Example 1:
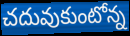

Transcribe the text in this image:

చదువుకుంటోన్న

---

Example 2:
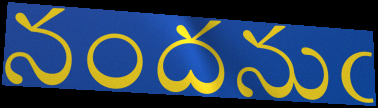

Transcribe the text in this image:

నందనుఁ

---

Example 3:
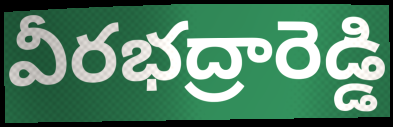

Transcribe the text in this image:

వీరభద్రారెడ్డి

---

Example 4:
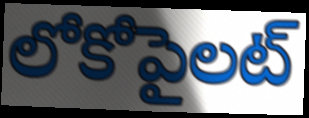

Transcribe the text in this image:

లోకోపైలట్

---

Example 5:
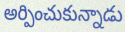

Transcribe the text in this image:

అర్పించుకున్నాడు